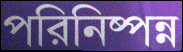
পরিনিষ্পন্ন